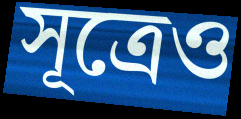
সূত্রেও